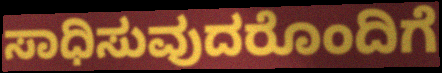
ಸಾಧಿಸುವುದರೊಂದಿಗೆ